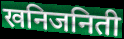
खनिजनिती